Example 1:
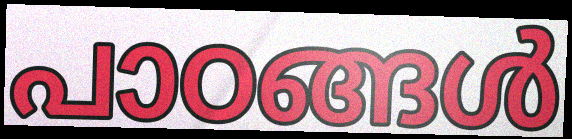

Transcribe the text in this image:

പാഠങ്ങൾ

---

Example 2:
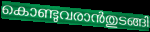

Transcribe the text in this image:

കൊണ്ടുവരാൻതുടങ്ങി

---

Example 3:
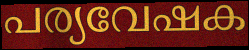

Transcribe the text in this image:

പര്യവേഷക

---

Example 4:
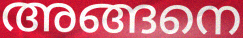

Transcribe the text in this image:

അങ്ങനെ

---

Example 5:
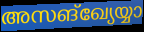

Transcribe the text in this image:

അസങ്ഖ്യേയ്യാ